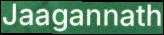
Jaagannath